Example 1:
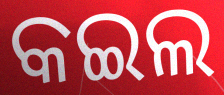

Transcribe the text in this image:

କଇଲ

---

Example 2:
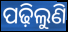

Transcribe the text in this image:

ପଢ଼ିଲୁଣି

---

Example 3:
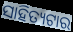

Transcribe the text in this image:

ସାହିତ୍ୟଟାର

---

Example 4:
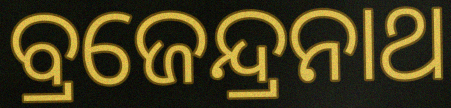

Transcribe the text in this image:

ବ୍ରଜେନ୍ଦ୍ରନାଥ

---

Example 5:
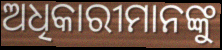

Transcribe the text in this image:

ଅଧିକାରୀମାନଙ୍କୁ